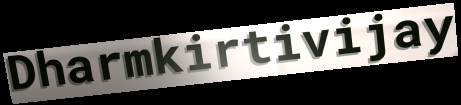
Dharmkirtivijay